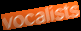
vocalists